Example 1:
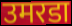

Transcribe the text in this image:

उमरडा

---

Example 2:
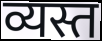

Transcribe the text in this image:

व्यस्त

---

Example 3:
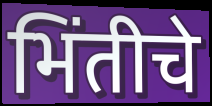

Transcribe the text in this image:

भिंतीचे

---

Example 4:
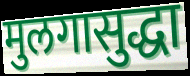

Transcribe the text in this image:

मुलगासुद्धा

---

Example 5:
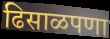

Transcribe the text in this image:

ढिसाळपणा